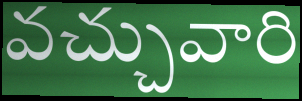
వచ్చువారి